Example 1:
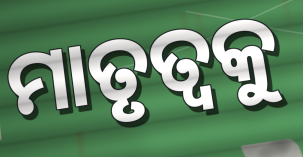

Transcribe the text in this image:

ମାତୃତ୍ବକୁ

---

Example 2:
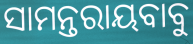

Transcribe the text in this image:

ସାମନ୍ତରାୟବାବୁ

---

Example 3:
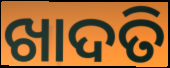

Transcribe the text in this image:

ଖାଦତି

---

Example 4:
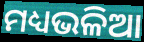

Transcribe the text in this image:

ମଧ୍ୟଭଳିଆ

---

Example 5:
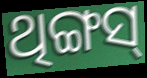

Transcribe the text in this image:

ଥିଙ୍ଗସ୍